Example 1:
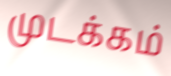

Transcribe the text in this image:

முடக்கம்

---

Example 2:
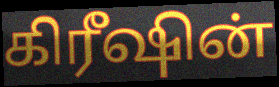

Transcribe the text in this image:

கிரீஷின்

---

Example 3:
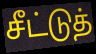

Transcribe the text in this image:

சீட்டுத்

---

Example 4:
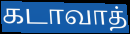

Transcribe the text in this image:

கடாவாத்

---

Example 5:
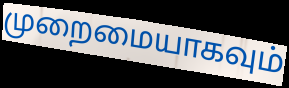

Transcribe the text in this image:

முறைமையாகவும்